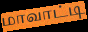
மாவாட்டி